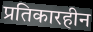
प्रतिकारहीन